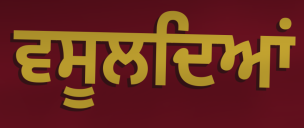
ਵਸੂਲਦਿਆਂ